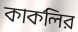
কার্কলির